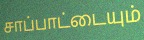
சாப்பாட்டையும்